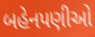
બહેનપણીઓ